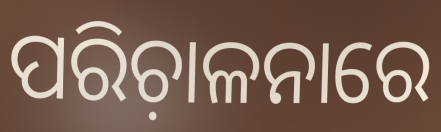
ପରିଚ଼ାଳନାରେ